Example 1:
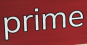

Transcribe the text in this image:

prime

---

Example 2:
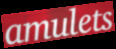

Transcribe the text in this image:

amulets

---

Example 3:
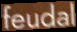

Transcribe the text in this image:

feudal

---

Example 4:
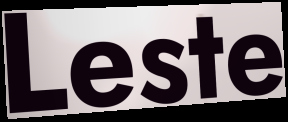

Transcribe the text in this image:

Leste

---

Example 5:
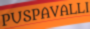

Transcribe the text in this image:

PUSPAVALLI